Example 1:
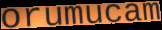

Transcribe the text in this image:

orumucam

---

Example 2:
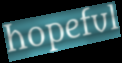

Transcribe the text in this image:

hopeful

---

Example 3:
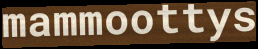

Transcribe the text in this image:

mammoottys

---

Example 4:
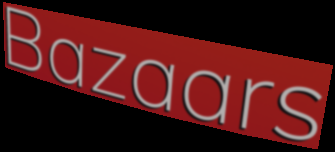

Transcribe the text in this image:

Bazaars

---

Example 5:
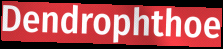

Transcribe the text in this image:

Dendrophthoe